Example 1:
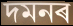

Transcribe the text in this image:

দমনৰ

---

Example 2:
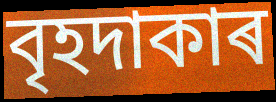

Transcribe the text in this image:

বৃহদাকাৰ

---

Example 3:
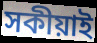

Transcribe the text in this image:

সকীয়াই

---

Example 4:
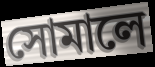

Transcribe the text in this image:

সোমালে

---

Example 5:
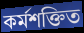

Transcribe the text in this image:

কৰ্মশক্তিত